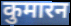
कुमारन